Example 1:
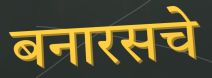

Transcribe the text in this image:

बनारसचे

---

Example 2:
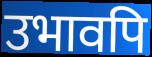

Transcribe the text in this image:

उभावपि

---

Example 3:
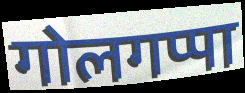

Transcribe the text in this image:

गोलगप्पा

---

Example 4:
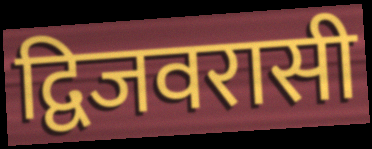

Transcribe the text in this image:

द्विजवरासी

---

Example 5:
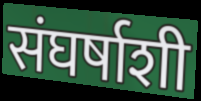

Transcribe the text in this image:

संघर्षाशी